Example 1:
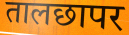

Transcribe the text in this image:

तालछापर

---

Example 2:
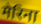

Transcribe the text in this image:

मेरिना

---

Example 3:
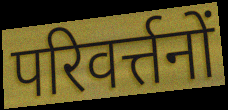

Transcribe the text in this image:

परिवर्त्तनों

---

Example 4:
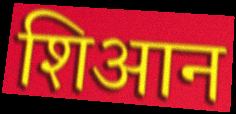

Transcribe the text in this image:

शिआन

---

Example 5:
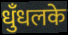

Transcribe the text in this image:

धुँधलके